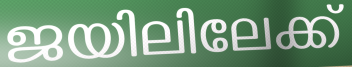
ജയിലിലേക്ക്